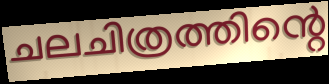
ചലചിത്രത്തിന്റെ